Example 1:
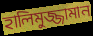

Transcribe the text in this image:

হালিমুজ্জামান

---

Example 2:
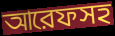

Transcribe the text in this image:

আরেফসহ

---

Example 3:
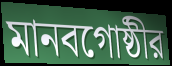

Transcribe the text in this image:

মানবগোষ্ঠীর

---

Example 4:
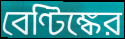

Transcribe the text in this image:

বেণ্টিঙ্কের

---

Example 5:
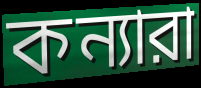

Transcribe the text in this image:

কন্যারা